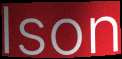
Ison